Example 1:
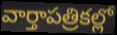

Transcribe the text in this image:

వార్తాపత్రికల్లో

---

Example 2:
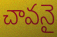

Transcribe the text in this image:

చావనై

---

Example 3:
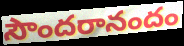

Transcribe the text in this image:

సౌందరానందం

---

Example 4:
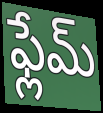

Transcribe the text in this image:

ఫ్లేమ్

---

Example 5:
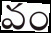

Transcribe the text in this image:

వం